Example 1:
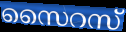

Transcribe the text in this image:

സൈറസ്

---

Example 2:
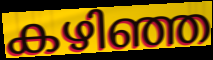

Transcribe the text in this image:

കഴിഞ്ഞ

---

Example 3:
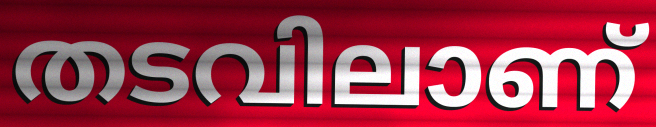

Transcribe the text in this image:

തടവിലാണ്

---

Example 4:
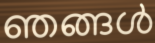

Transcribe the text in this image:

ഞങ്ങൾ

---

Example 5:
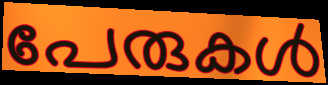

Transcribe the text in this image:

പേരുകൾ